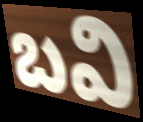
బవి